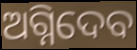
ଅଗ୍ନିଦେବ